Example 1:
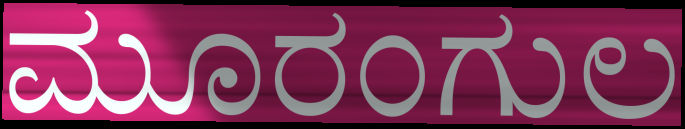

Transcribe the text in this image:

ಮೂರಂಗುಲ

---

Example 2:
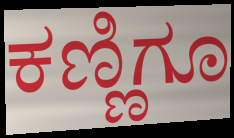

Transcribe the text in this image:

ಕಣ್ಣಿಗೂ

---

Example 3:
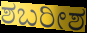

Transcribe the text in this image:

ಶಬರೀಶ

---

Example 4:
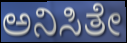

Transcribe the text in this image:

ಅನಿಸಿತೇ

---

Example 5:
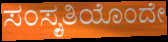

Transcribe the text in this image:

ಸಂಸ್ಕೃತಿಯೊಂದೇ